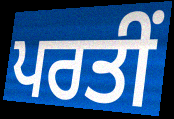
ਪਰਤੀਂ